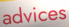
advices